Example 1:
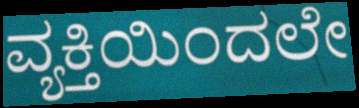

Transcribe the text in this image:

ವ್ಯಕ್ತಿಯಿಂದಲೇ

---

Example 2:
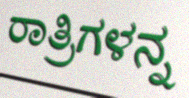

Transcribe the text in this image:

ರಾತ್ರಿಗಳನ್ನ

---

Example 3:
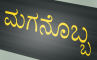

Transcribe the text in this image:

ಮಗನೊಬ್ಬ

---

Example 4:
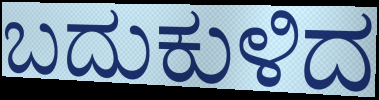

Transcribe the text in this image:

ಬದುಕುಳಿದ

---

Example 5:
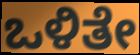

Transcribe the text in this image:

ಒಳಿತೇ